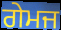
ਗੇਮਜ